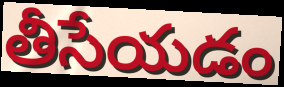
తీసేయడం